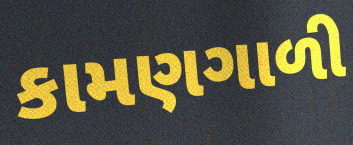
કામણગાળી